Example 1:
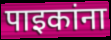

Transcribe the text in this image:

पाइकांना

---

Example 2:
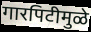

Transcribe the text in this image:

गारपिटीमुळे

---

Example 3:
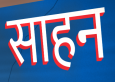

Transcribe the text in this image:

साहन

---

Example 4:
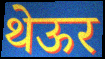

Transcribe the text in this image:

थेऊर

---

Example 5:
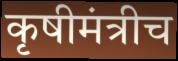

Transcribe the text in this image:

कृषीमंत्रीच